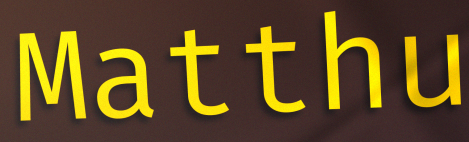
Matthu